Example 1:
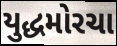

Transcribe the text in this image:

યુદ્ધમોરચા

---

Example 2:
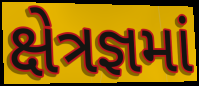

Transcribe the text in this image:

ક્ષેત્રજ્ઞમાં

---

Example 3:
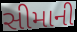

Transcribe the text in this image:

સીમાની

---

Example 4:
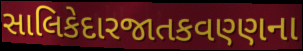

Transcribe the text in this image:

સાલિકેદારજાતકવણ્ણના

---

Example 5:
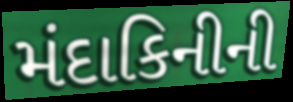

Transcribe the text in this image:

મંદાકિનીની